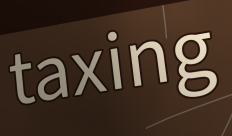
taxing